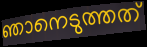
ഞാനെടുത്തത്